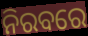
ନିରବରେ